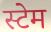
स्टेम